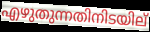
എഴുതുന്നതിനിടയില്